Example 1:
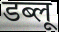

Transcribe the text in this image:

डब्लू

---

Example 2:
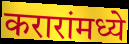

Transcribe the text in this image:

करारांमध्ये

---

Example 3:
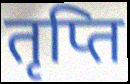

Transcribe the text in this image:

तृप्ति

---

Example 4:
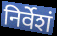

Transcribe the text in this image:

निर्वेशं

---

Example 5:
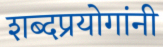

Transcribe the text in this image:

शब्दप्रयोगांनी